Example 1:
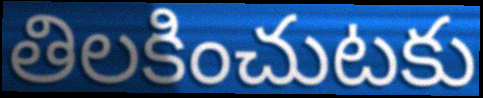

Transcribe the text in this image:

తిలకించుటకు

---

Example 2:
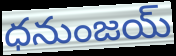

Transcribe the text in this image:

ధనుంజయ్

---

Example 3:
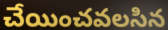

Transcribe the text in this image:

చేయించవలసిన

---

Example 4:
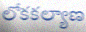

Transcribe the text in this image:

లోకకల్యాణ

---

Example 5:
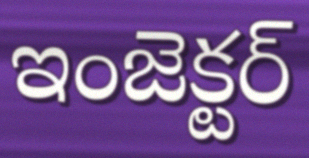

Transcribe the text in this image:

ఇంజెక్టర్